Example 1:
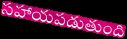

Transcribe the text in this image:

సహాయపడుతుంది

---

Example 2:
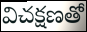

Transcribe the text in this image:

విచక్షణతో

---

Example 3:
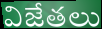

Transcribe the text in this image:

విజేతలు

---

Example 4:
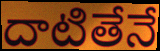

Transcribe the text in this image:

దాటితేనే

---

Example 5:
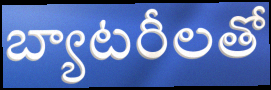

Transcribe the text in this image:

బ్యాటరీలతో